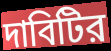
দাবিটির